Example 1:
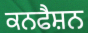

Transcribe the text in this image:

ਕਨਫੈਸ਼ਨ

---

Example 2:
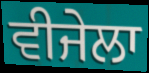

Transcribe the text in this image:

ਵੀਜੇਲਾ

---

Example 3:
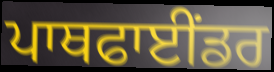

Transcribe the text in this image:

ਪਾਥਫਾਈਂਡਰ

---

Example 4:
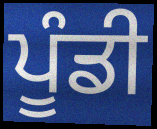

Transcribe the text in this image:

ਪੂੰਡੀ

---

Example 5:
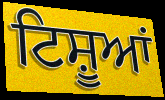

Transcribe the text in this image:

ਟਿਸ਼ੂਆਂ